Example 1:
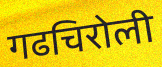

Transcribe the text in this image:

गढचिरोली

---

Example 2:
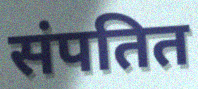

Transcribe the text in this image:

संपतित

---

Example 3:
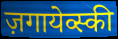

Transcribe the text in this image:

ज़गायेव्स्की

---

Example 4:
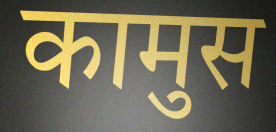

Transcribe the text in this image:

कामुस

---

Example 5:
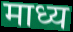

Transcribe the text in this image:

माध्‍य